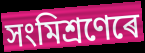
সংমিশ্ৰণেৰে